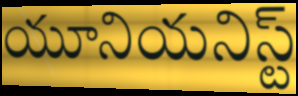
యూనియనిస్ట్